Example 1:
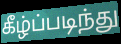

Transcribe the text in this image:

கீழ்ப்படிந்து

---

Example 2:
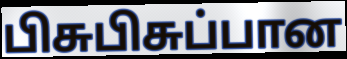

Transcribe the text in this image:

பிசுபிசுப்பான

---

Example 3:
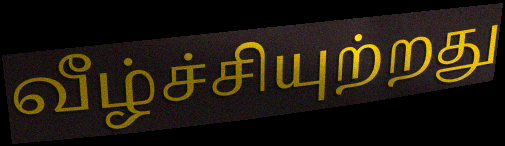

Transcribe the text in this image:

வீழ்ச்சியுற்றது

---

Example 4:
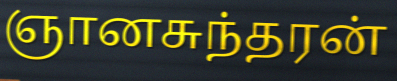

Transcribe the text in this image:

ஞானசுந்தரன்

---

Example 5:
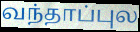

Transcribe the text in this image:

வந்தாப்புல